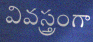
వివస్త్రంగా